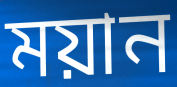
ময়ান